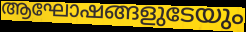
ആഘോഷങ്ങളുടേയും